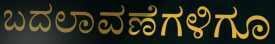
ಬದಲಾವಣೆಗಳಿಗೂ